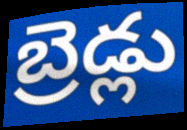
బ్రెడ్లు